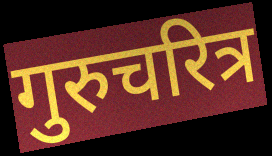
गुरुचरित्र